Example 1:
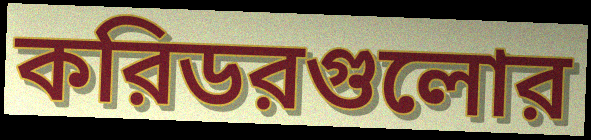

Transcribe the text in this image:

করিডরগুলোর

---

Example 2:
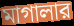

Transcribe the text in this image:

মাগালার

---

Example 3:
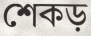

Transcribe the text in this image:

শেকড়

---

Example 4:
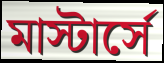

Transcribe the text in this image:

মাস্টার্সে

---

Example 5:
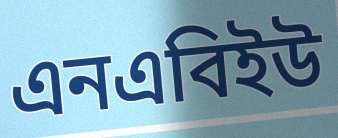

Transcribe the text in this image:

এনএবিইউ